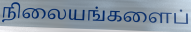
நிலையங்களைப்